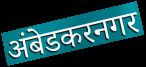
अंबेडकरनगर